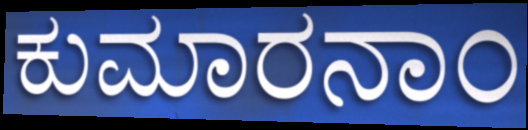
ಕುಮಾರನಾಂ